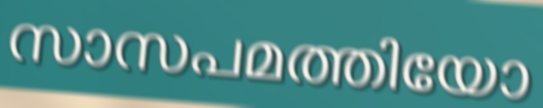
സാസപമത്തിയോ